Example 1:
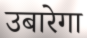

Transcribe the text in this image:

उबारेगा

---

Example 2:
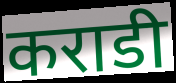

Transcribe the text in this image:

कराडी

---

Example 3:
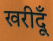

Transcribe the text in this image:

खरीदूँ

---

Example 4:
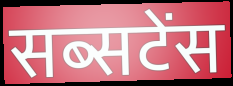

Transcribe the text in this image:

सब्सटेंस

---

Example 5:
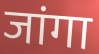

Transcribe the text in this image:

जांगा